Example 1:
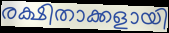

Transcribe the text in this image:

രക്ഷിതാക്കളായി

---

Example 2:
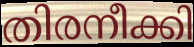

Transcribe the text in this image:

തിരനീക്കി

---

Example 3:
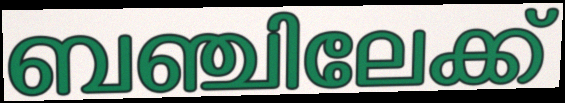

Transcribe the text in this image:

ബഞ്ചിലേക്ക്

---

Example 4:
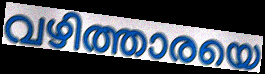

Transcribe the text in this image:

വഴിത്താരയെ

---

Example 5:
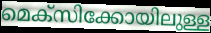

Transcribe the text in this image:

മെക്സിക്കോയിലുള്ള